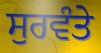
ਸੁਰਵੰਤੇ